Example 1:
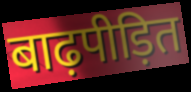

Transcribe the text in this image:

बाढ़पीड़ित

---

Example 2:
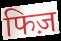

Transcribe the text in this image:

फिज़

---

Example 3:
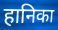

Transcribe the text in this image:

हानिका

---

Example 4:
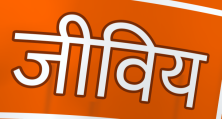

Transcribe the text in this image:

जीविय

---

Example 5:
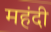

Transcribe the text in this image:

महंदी